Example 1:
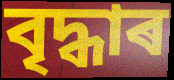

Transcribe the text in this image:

বৃদ্ধাৰ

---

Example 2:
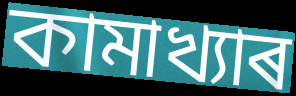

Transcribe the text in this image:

কামাখ্যাৰ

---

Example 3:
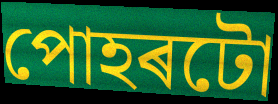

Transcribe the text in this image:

পোহৰটো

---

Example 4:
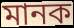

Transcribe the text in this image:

মানক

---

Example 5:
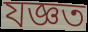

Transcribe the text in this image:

যজ্ঞত